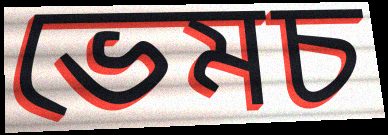
ভেমচ